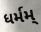
ધર્મમ્